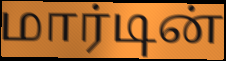
மார்டின்